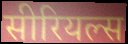
सीरियल्स